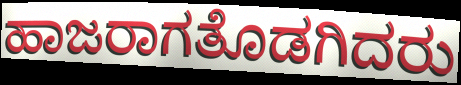
ಹಾಜರಾಗತೊಡಗಿದರು